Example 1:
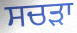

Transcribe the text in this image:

ਸਚੜਾ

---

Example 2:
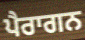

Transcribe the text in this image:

ਪੈਰਾਗਨ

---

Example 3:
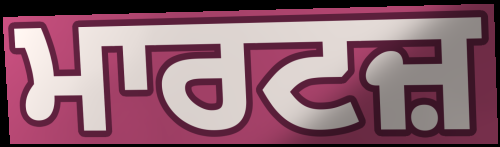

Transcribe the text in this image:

ਮਾਰਟਜ਼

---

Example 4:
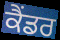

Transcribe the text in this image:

ਕੈਂਡਰ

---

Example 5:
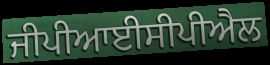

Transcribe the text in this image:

ਜੀਪੀਆਈਸੀਪੀਐਲ